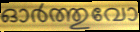
ഓർത്തുവോ